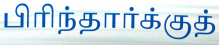
பிரிந்தார்க்குத்